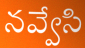
నవ్వేసి